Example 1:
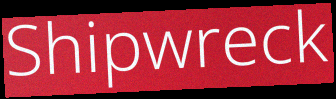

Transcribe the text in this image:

Shipwreck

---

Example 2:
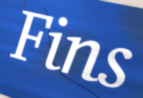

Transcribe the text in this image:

Fins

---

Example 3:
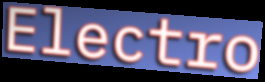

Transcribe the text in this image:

Electro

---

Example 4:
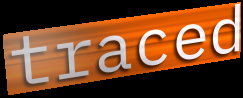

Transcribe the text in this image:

traced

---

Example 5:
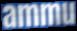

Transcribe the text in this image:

ammu